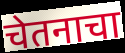
चेतनाचा